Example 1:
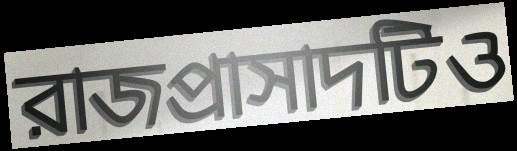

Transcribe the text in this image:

রাজপ্রাসাদটিও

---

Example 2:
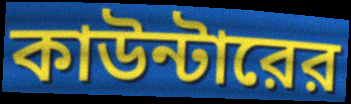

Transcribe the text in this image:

কাউন্টারের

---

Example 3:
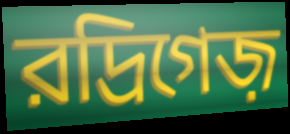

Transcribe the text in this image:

রদ্রিগেজ়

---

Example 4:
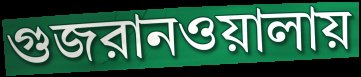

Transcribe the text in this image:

গুজরানওয়ালায়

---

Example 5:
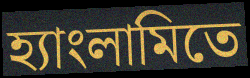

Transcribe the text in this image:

হ্যাংলামিতে